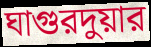
ঘাগুরদুয়ার